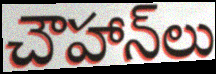
చౌహాన్‌లు